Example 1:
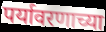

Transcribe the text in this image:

पर्यावरणाच्या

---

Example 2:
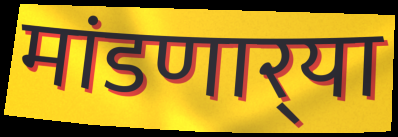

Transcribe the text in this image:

मांडणार्‍या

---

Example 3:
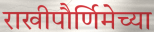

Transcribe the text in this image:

राखीपौर्णिमेच्या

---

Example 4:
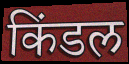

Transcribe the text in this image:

किंडल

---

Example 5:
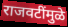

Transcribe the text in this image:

राजवटींमुळे